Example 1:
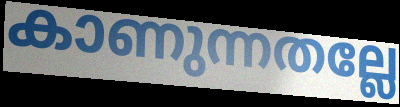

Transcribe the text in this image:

കാണുന്നതല്ലേ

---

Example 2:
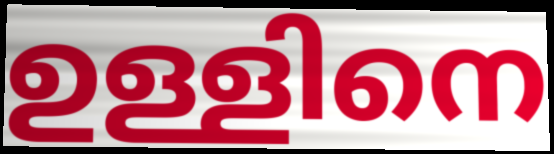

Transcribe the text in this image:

ഉള്ളിനെ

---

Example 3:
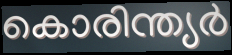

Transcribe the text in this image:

കൊരിന്ത്യർ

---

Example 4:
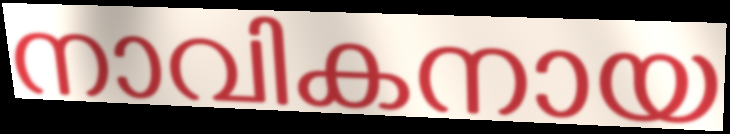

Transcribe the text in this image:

നാവികനായ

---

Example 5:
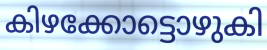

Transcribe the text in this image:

കിഴക്കോട്ടൊഴുകി